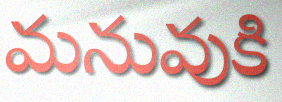
మనువుకి